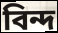
বিন্দ